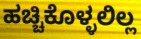
ಹಚ್ಚಿಕೊಳ್ಳಲಿಲ್ಲ